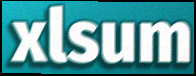
xlsum